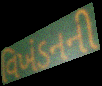
વિખંડનની